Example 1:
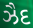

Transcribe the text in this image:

ઝૈદ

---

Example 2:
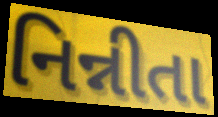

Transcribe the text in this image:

નિન્નીતા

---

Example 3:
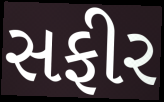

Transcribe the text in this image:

સફીર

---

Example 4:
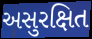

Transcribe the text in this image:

અસુરક્ષિત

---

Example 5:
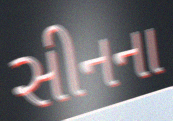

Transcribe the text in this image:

સીનના